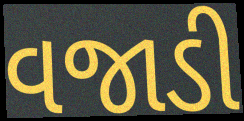
વજાડી